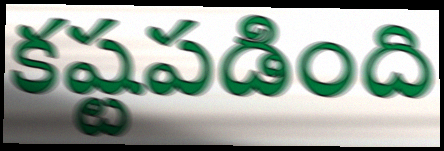
కష్టపడింది